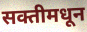
सक्तीमधून